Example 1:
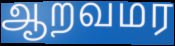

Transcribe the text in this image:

ஆறவமர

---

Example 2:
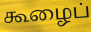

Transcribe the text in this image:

கூழைப்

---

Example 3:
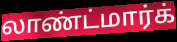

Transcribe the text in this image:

லாண்ட்மார்க்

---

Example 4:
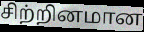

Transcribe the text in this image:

சிற்றினமான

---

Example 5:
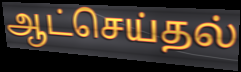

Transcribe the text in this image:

ஆட்செய்தல்